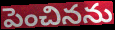
పెంచినను